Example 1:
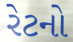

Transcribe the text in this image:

રેટનો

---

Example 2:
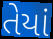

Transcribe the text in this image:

તેયાં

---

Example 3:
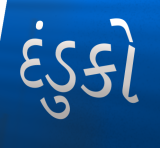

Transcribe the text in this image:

દંડુકો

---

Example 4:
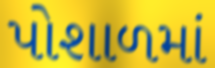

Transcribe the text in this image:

પોશાળમાં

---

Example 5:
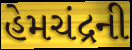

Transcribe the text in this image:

હેમચંદ્રની